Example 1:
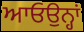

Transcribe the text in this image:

ਆਓਉਨ੍ਹਾਂ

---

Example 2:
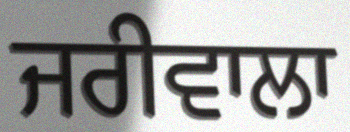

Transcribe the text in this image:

ਜਰੀਵਾਲਾ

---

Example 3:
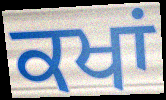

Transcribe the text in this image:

ਕਖਾਂ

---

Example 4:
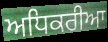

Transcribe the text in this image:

ਅਧਿਕਰੀਆ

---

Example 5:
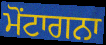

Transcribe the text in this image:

ਮੋਂਟਾਗਨਾ